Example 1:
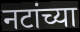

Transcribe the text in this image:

नटांच्या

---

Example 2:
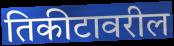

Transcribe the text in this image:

तिकीटावरील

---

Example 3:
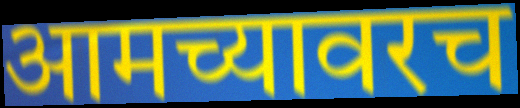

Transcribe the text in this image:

आमच्यावरच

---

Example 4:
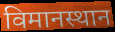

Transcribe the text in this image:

विमानस्थान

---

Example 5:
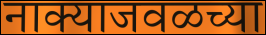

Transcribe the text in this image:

नाक्याजवळच्या